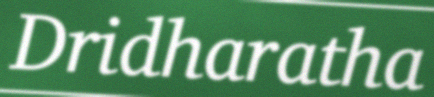
Dridharatha